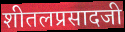
शीतलप्रसादजी